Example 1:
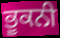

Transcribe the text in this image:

ਭੂਕਨੀ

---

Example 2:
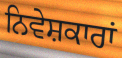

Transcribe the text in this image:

ਨਿਵੇਸ਼ਕਾਰਾਂ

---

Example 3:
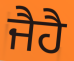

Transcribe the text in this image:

ਜੈਹੈ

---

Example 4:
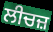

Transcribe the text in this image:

ਲੀਚਜ਼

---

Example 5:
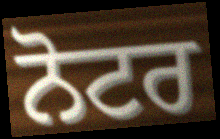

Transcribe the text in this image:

ਨੋਟਰ